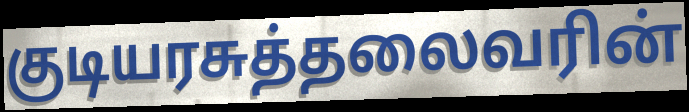
குடியரசுத்தலைவரின்